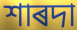
শাৰদা